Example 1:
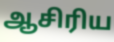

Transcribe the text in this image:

ஆசிரிய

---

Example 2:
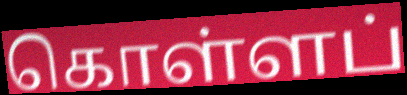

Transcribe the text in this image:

கொள்ளப்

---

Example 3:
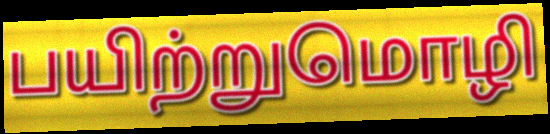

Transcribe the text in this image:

பயிற்றுமொழி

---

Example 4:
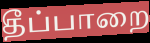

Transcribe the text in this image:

தீப்பாறை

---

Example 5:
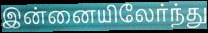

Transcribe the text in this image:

இன்னையிலேர்ந்து